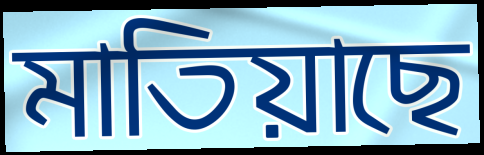
মাতিয়াছে